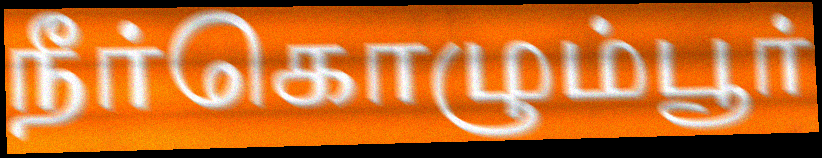
நீர்கொழும்பூர்